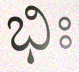
ಭಿಃ